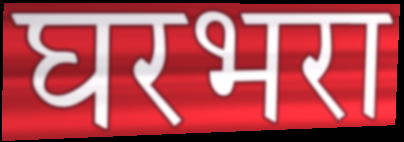
घरभरा